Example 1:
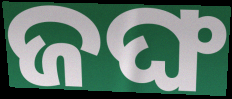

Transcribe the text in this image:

ଜଙ୍ଘ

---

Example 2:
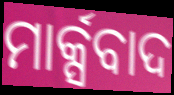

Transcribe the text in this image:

ମାର୍କ୍ସବାଦ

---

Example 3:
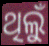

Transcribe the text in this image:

ଥିଲୁଁ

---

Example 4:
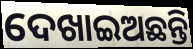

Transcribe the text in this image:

ଦେଖାଇଅଛନ୍ତି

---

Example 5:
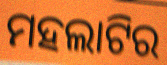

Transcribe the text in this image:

ମହଲାଟିର